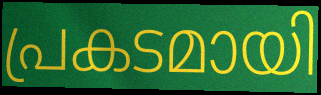
പ്രകടമായി